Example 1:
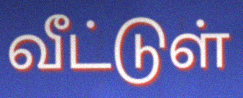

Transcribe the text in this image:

வீட்டுள்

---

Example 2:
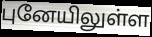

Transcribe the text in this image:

புனேயிலுள்ள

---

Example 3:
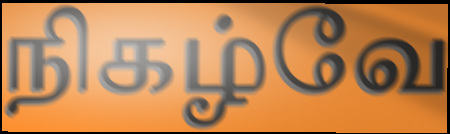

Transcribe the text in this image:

நிகழ்வே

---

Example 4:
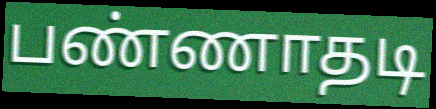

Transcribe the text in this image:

பண்ணாதடி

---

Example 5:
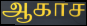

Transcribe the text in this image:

ஆகாச